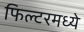
फिल्टरमध्ये